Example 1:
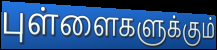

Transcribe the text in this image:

புள்ளைகளுக்கும்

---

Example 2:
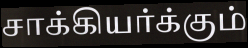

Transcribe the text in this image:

சாக்கியர்க்கும்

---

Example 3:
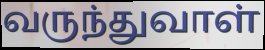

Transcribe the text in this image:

வருந்துவாள்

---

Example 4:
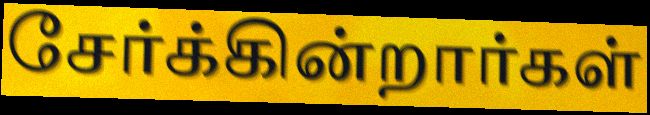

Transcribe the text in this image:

சேர்க்கின்றார்கள்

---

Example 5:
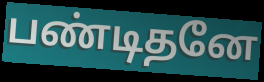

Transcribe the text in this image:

பண்டிதனே